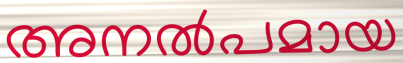
അനൽപമായ